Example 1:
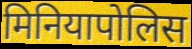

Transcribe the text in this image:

मिनियापोलिस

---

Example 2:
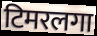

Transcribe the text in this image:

टिमरलगा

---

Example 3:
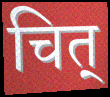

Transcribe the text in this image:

चित्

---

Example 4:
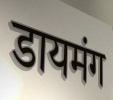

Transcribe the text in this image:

डायमंग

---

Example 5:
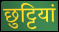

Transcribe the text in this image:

छुट्टियां